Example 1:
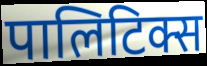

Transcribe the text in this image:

पालिटिक्स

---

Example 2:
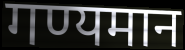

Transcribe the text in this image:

गण्यमान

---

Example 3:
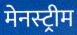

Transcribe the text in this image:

मेनस्‍ट्रीम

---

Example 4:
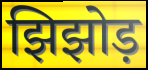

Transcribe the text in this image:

झिझोड़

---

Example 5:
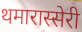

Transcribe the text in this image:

थमारास्सेरी